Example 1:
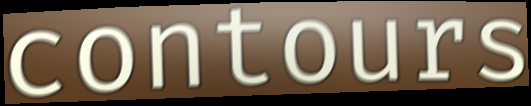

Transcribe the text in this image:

contours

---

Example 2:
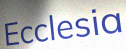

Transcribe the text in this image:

Ecclesia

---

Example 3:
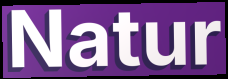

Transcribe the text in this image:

Natur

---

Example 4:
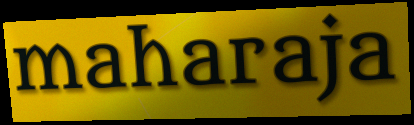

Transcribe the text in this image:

maharaja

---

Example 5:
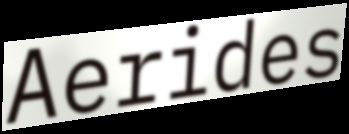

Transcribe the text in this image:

Aerides